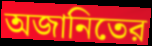
অজানিতের